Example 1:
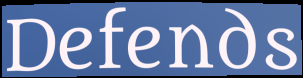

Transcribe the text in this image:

Defends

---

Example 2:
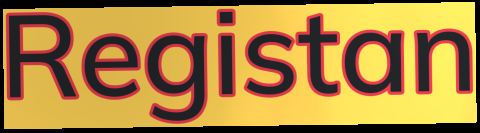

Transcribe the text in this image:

Registan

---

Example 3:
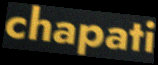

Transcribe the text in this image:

chapati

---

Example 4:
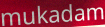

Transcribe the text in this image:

mukadam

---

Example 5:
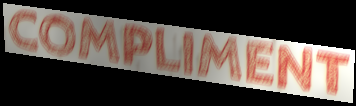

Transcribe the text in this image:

COMPLIMENT